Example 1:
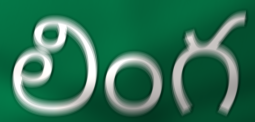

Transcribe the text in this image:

లింగ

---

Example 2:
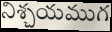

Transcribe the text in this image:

నిశ్చయముగ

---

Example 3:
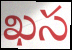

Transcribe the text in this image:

ఖస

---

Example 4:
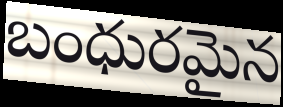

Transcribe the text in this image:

బంధురమైన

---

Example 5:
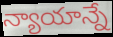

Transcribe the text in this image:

న్యాయాన్నే